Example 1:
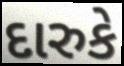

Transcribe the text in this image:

દારુકે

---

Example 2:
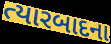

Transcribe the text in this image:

ત્યારબાદના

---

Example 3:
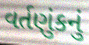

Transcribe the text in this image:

વર્તણુંકનું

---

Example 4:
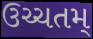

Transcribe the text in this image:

ઉચ્ચતમ્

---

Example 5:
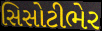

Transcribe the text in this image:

સિસોટીભેર